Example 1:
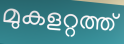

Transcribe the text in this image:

മുകളറ്റത്ത്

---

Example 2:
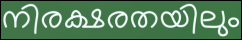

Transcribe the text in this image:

നിരക്ഷരതയിലും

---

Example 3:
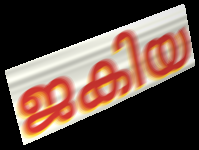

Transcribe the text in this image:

ജകിയ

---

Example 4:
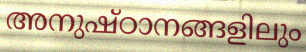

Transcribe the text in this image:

അനുഷ്ഠാനങ്ങളിലും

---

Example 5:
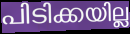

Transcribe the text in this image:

പിടിക്കയില്ല